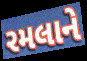
રમલાને